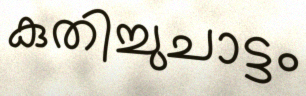
കുതിച്ചുചാട്ടം